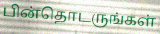
பின்தொடருங்கள்